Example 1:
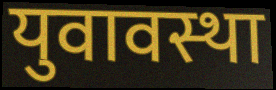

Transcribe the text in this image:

युवावस्था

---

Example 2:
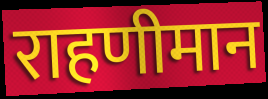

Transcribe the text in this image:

राहणीमान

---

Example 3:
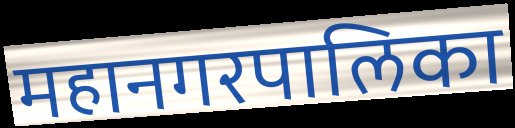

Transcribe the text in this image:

महानगरपालिका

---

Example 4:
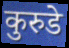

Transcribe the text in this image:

कुरुडे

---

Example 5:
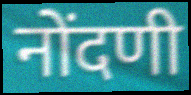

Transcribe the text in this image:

नोंदणी